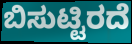
ಬಿಸುಟ್ಟಿರದೆ